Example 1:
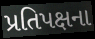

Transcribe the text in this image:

પ્રતિપક્ષના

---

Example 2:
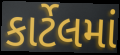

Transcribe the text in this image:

કાર્ટેલમાં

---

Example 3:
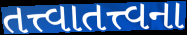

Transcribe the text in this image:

તત્ત્વાતત્ત્વના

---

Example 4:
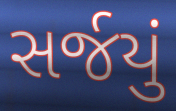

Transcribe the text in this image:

સર્જયું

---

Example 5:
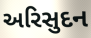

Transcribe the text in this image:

અરિસુદન